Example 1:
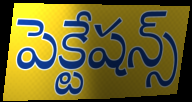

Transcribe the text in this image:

పెక్టేషన్స్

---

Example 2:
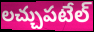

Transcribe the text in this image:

లచ్చుపటేల్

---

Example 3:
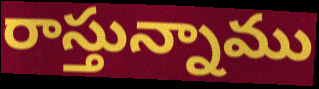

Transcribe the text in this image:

రాస్తున్నాము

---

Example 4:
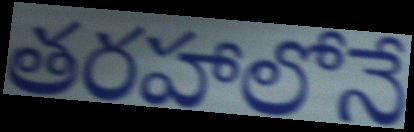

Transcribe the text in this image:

తరహాలోనే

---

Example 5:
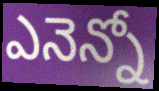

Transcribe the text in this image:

ఎనెన్నో